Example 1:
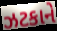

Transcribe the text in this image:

ઝટકાને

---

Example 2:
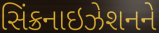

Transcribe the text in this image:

સિંક્રનાઇઝેશનને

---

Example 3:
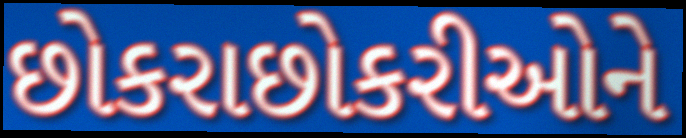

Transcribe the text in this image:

છોકરાછોકરીઓને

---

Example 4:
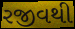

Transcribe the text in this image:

રજીવથી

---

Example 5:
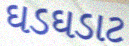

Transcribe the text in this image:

ઘડઘડાટ